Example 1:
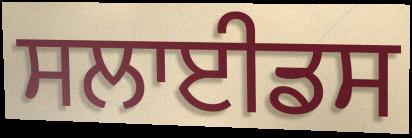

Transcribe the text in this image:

ਸਲਾਈਡਸ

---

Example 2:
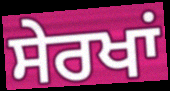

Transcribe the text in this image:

ਸੇਰਖਾਂ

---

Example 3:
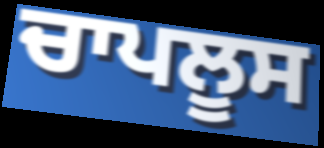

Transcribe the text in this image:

ਚਾਪਲੂਸ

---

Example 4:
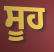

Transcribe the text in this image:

ਸੂਹ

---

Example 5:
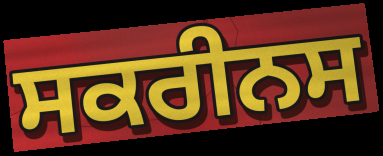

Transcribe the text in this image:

ਸਕਰੀਨਸ